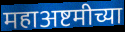
महाअष्टमीच्या